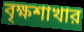
বৃক্ষশাখার